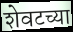
शेवटच्या